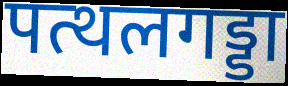
पत्थलगड्डा